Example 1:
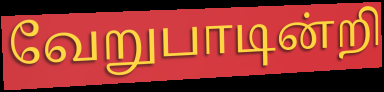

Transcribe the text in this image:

வேறுபாடின்றி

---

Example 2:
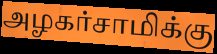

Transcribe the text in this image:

அழகர்சாமிக்கு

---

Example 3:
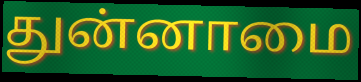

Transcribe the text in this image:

துன்னாமை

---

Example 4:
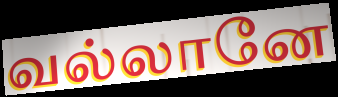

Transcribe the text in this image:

வல்லானே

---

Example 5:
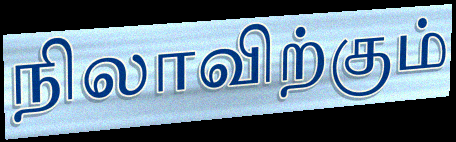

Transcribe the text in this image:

நிலாவிற்கும்